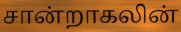
சான்றாகலின்